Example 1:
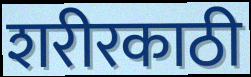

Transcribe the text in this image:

शरीरकाठी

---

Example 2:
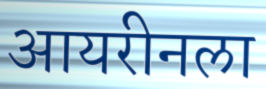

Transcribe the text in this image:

आयरीनला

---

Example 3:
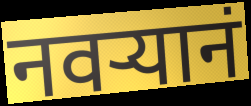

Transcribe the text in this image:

नवर्‍यानं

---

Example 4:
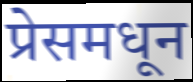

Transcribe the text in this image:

प्रेसमधून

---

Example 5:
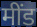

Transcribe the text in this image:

मींड